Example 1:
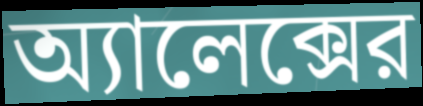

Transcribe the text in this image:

অ্যালেক্সের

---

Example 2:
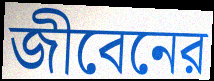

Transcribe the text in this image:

জীবেনের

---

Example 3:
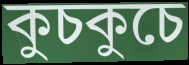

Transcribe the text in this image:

কুচকুচে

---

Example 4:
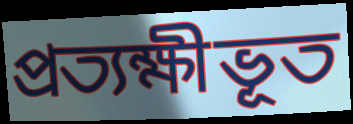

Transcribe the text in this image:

প্রত্যক্ষীভূত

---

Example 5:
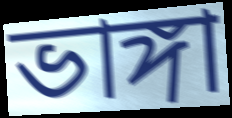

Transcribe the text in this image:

ভাঙ্গা